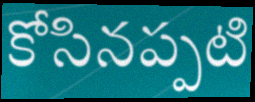
కోసినప్పటి